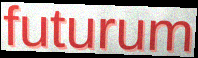
futurum